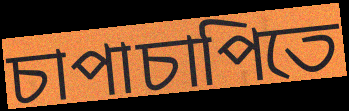
চাপাচাপিতে